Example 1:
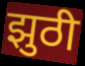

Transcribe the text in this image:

झुठी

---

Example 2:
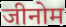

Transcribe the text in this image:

जीनोम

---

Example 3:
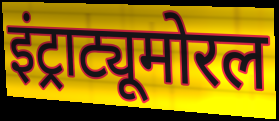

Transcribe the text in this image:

इंट्राट्यूमोरल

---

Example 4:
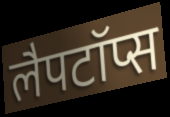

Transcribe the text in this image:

लैपटॉप्‍स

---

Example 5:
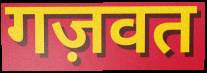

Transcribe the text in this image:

गज़वत